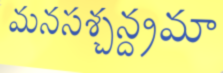
మనసశ్చన్ద్రమా